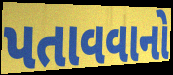
પતાવવાનો